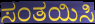
ಸಂತಯಿಸಿ